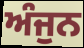
ਅੰਜੁਨ